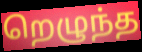
றெழுந்த